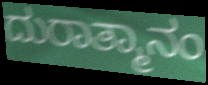
ದುರಾತ್ಮಾನಂ